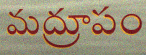
మద్రూపం